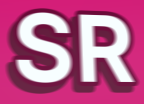
SR